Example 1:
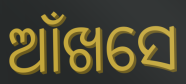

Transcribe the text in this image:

ଆଁଖସେ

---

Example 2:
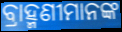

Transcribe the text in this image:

ବ୍ରାହ୍ମଣୀମାନଙ୍କ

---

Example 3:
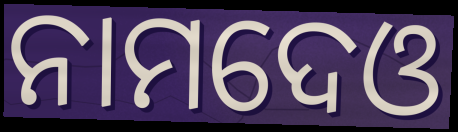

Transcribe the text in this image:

ନାମଦେଓ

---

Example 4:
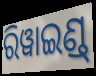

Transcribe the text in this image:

ରିୱାଇଣ୍ଡ୍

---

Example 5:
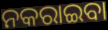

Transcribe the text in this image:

ନକରାଇବା